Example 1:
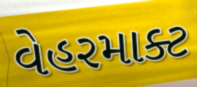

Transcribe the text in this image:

વેહરમાક્ટ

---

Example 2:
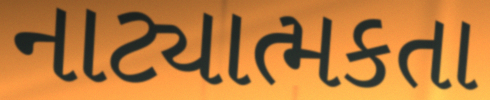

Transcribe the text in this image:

નાટ્યાત્મકતા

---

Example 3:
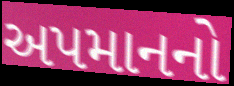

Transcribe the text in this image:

અપમાનનો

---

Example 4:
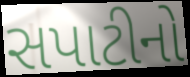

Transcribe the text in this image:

સપાટીનો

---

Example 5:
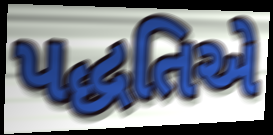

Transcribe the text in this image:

પદ્ધતિએ